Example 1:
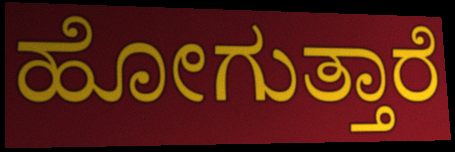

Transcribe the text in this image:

ಹೋಗುತ್ತಾರೆ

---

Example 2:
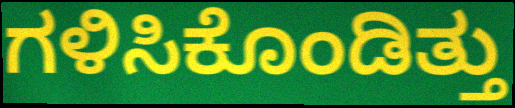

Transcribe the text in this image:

ಗಳಿಸಿಕೊಂಡಿತ್ತು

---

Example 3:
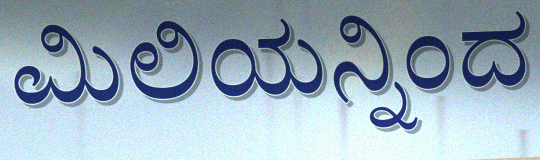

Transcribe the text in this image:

ಮಿಲಿಯನ್ನಿಂದ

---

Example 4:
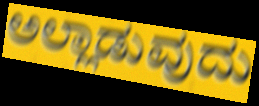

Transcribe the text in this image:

ಅಲ್ಲಾಡುವುದು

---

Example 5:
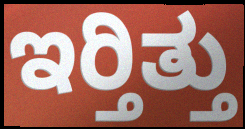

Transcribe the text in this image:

ಇರ್‍ತಿತ್ತು